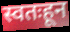
स्वतःहून